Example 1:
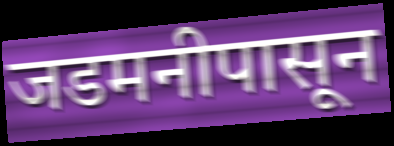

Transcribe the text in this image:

जडमनीपासून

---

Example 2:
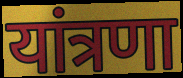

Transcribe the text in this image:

यांत्रणा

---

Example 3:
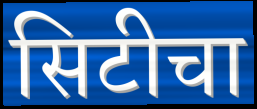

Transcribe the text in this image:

सिटीचा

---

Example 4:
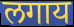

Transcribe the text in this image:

लगाय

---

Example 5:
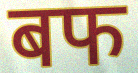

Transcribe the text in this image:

बफ